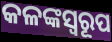
କଳଙ୍କସ୍ୱରୂପ